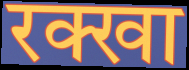
रक्खा